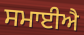
ਸਮਾਈਐ